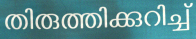
തിരുത്തിക്കുറിച്ച്